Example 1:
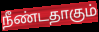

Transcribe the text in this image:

நீண்டதாகும்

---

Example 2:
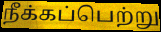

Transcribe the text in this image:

நீக்கப்பெற்று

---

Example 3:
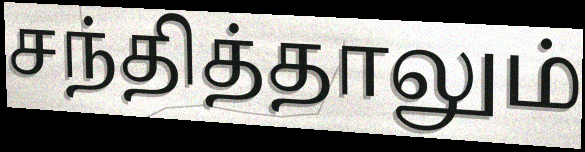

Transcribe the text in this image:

சந்தித்தாலும்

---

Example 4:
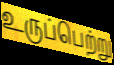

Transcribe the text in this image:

உருப்பெற்று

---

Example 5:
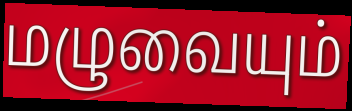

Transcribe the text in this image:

மழுவையும்